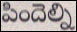
పిందెల్ని